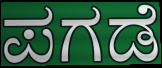
ಪಗಡೆ